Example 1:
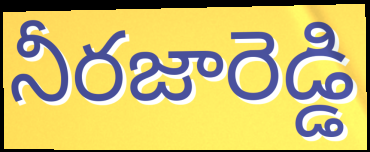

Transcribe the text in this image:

నీరజారెడ్డి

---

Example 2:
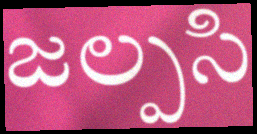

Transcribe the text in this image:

జల్పసి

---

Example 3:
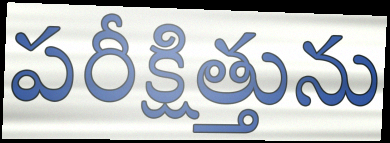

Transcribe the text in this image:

పరీక్షిత్తును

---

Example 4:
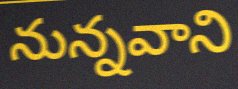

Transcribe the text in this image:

నున్నవాని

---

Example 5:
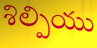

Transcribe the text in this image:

శిల్పియు